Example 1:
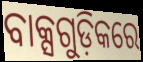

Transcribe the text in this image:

ବାକ୍ସଗୁଡ଼ିକରେ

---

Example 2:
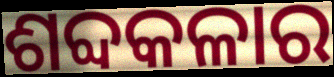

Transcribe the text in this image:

ଶବ୍ଦକଳାର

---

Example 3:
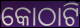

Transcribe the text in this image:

କୋଠାଟି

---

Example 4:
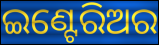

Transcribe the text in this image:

ଇଣ୍ଟେରିଅର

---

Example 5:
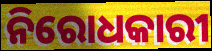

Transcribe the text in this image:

ନିରୋଧକାରୀ